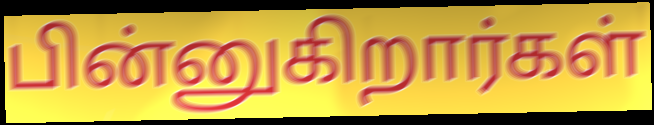
பின்னுகிறார்கள்